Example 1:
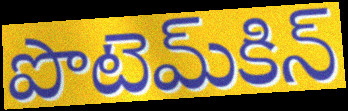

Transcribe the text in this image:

పొటెమ్‌కిన్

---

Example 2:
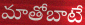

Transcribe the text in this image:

మాతోబాటే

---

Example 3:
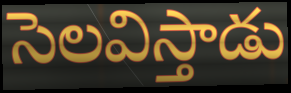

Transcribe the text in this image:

సెలవిస్తాడు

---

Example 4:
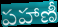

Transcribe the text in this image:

పహాణీ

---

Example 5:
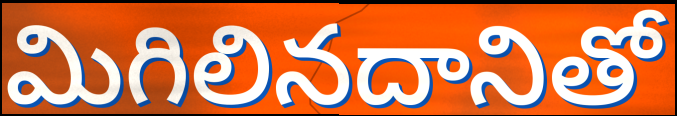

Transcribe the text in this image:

మిగిలినదానితో